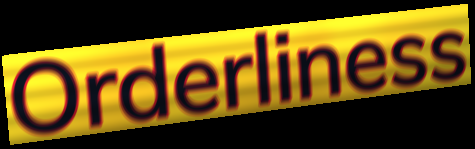
Orderliness